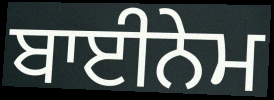
ਬਾਈਨੇਮ